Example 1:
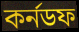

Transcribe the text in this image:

কর্নডফ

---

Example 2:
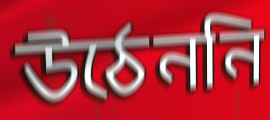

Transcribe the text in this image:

উঠেননি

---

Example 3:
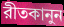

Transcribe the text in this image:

রীতকানুন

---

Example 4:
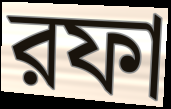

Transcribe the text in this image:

রফা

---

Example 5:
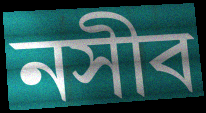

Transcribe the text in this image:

নসীব